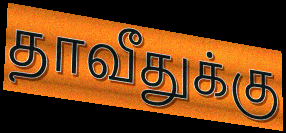
தாவீதுக்கு